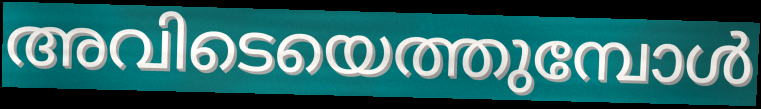
അവിടെയെത്തുമ്പോൾ